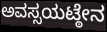
ಅವಸ್ಸಯಟ್ಠೇನ